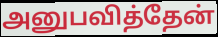
அனுபவித்தேன்